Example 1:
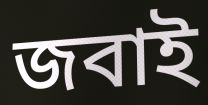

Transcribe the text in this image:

জবাই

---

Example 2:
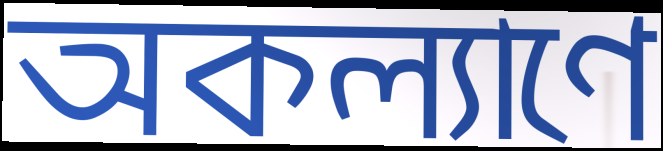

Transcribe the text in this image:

অকল্যাণে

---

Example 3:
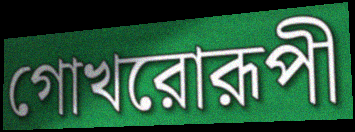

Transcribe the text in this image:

গোখরোরূপী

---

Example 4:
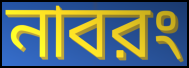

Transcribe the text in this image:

নাবরং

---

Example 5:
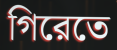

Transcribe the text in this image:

গিরেতে